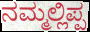
ನಮ್ಮಲ್ಲಿಪ್ಪ